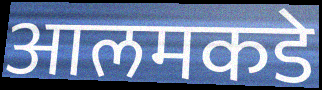
आलमकडे